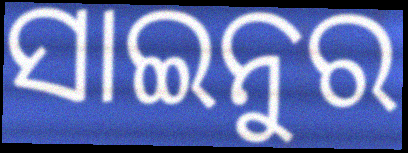
ସାଇନୁର